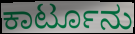
ಕಾರ್ಟೂನು